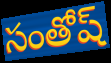
సంతోష్